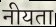
नीयता